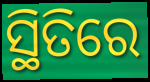
ସ୍ଥିତିରେ